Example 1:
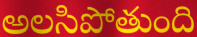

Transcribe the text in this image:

అలసిపోతుంది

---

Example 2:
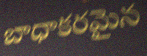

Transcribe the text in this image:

బాధాకరమైన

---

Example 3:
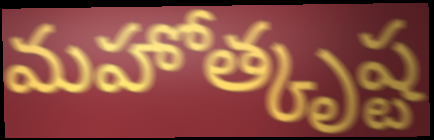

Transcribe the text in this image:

మహోత్కృష్ట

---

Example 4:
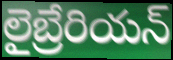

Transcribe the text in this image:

లైబ్రేరియన్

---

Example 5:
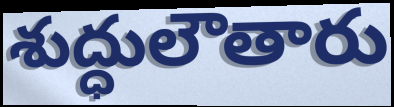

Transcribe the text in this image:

శుద్ధులౌతారు